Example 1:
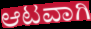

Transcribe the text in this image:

ಆಟವಾಗಿ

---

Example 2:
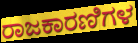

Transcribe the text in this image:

ರಾಜಕಾರಣಿಗಳ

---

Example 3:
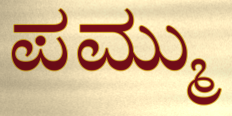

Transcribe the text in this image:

ಪಮ್ಮು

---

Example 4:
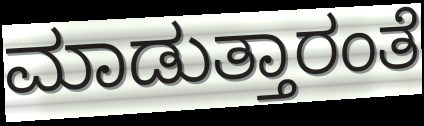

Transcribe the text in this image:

ಮಾಡುತ್ತಾರಂತೆ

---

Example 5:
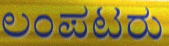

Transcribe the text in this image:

ಲಂಪಟರು